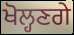
ਖੋਲ੍ਹਣਗੇ